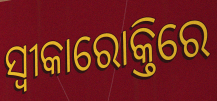
ସ୍ୱୀକାରୋକ୍ତିରେ